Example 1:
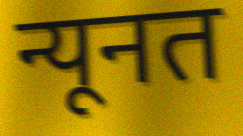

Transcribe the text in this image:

न्यूनत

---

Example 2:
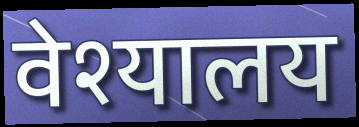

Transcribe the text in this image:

वेश्यालय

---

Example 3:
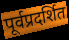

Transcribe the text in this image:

पूर्वप्रदर्शित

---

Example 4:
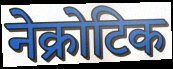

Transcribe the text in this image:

नेक्रोटिक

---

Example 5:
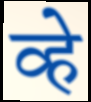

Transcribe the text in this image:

व्हे